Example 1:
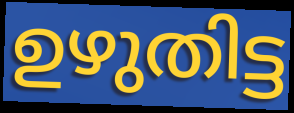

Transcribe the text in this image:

ഉഴുതിട്ട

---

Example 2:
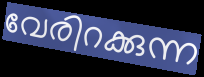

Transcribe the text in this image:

വേരിറക്കുന്ന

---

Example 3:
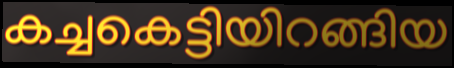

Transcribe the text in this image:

കച്ചകെട്ടിയിറങ്ങിയ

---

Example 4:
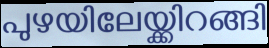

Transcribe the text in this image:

പുഴയിലേയ്ക്കിറങ്ങി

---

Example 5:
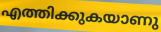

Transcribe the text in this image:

എത്തിക്കുകയാണു